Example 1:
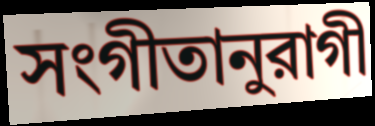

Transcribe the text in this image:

সংগীতানুরাগী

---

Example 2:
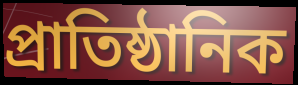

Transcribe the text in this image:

প্রাতিষ্ঠানিক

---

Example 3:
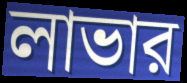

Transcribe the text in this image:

লাভার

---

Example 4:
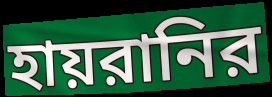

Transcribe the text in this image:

হায়রানির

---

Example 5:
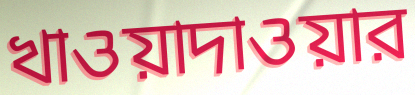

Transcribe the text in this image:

খাওয়াদাওয়ার